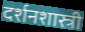
दर्शनशास्त्री